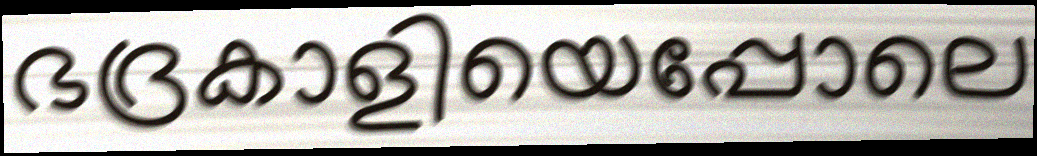
ഭദ്രകാളിയെപ്പോലെ